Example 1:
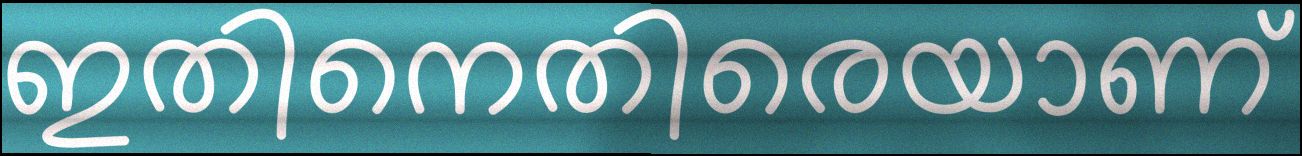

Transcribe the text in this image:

ഇതിനെതിരെയാണ്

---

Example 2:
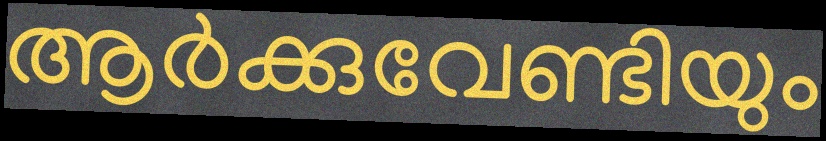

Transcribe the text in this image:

ആർക്കുവേണ്ടിയും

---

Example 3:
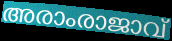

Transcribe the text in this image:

അരാംരാജാവ്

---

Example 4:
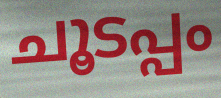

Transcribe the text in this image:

ചൂടപ്പം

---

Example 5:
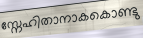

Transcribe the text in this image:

സ്നേഹിതാനാകകൊണ്ടു